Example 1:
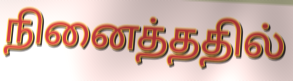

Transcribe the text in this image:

நினைத்ததில்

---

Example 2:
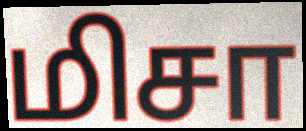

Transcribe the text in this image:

மிசா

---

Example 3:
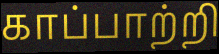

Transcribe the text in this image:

காப்பாற்றி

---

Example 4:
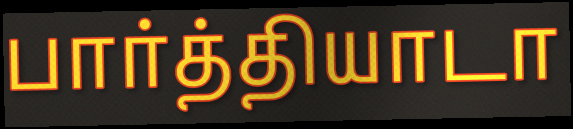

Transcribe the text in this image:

பார்த்தியாடா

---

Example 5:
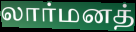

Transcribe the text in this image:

லார்மனத்